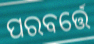
ପରବର୍ତ୍ତେ